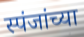
स्पंजांच्या